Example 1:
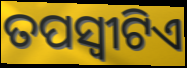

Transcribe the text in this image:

ତପସ୍ୱୀଟିଏ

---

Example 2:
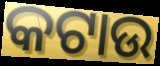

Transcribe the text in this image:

କଟାଉ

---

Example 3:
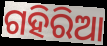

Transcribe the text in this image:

ଗହିରିଆ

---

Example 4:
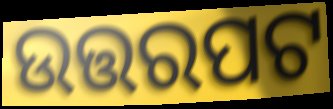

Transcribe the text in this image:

ଉତ୍ତରପଟ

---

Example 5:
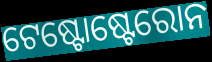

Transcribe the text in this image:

ଟେଷ୍ଟୋଷ୍ଟେରୋନ